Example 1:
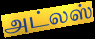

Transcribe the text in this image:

அட்லஸ்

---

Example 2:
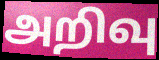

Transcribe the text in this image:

அறிவு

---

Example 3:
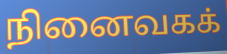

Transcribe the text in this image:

நினைவகக்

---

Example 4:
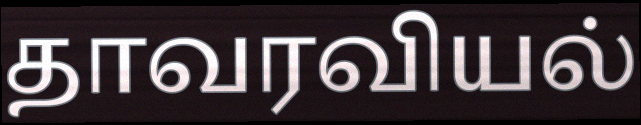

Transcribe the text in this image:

தாவரவியல்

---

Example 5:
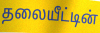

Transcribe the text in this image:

தலையீட்டின்